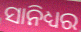
ସାନିଧ୍ୟର